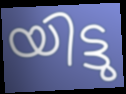
യിട്ടു